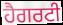
ਹੈਗਰਟੀ